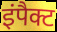
इंपैक्ट